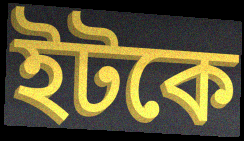
ইটকে